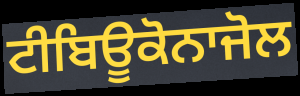
ਟੀਬਿਊਕੋਨਾਜੋਲ